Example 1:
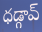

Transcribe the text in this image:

ధడ్గావ్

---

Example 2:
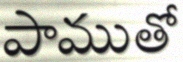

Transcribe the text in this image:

పాముతో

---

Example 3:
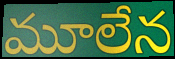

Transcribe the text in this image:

మూలేన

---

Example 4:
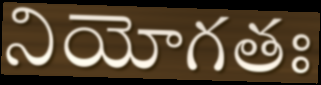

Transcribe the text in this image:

నియోగతః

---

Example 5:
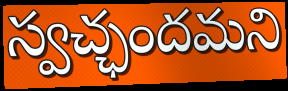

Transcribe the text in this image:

స్వచ్ఛందమని